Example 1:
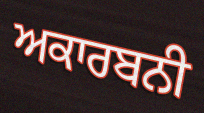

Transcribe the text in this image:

ਅਕਾਰਬਨੀ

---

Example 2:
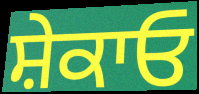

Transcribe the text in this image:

ਸ਼ੇਕਾਓ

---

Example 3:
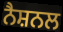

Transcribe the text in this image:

ਨੈਸ਼ਨਲ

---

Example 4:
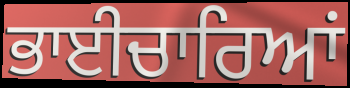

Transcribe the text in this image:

ਭਾਈਚਾਰਿਆਂ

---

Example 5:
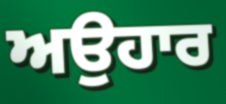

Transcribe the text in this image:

ਅਉਹਾਰ